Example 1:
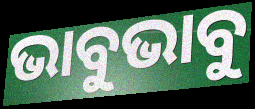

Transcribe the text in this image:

ଭାବୁଭାବୁ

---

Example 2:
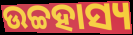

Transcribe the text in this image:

ଉଚ୍ଚହାସ୍ୟ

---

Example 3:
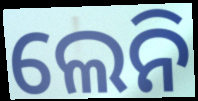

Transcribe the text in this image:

ଲେନି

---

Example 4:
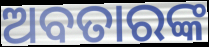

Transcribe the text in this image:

ଅବତାରଙ୍କ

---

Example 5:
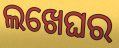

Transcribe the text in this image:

ଲଖେଘର